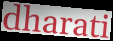
dharati